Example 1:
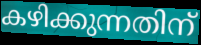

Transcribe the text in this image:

കഴിക്കുന്നതിന്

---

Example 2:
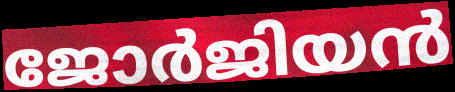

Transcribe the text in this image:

ജോർജിയൻ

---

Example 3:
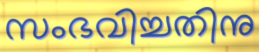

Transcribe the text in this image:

സംഭവിച്ചതിനു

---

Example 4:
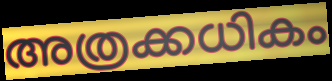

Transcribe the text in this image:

അത്രക്കധികം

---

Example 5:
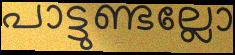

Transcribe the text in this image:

പാട്ടുണ്ടല്ലോ